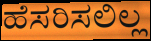
ಹೆಸರಿಸಲಿಲ್ಲ